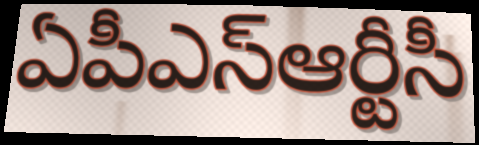
ఏపీఎస్ఆర్టీసీ